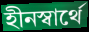
হীনস্বার্থে